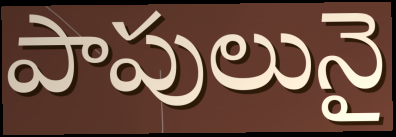
పాపులునై